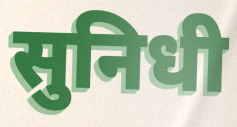
सुनिधी